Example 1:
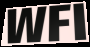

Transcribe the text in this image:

WFI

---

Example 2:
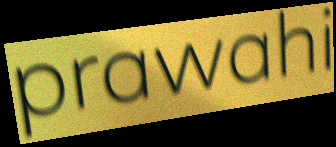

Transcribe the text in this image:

prawahi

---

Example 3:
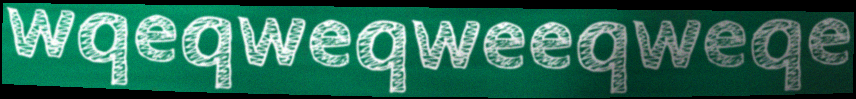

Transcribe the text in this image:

wqeqweqweeqweqe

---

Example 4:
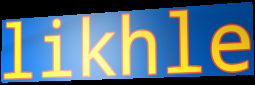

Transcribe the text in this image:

likhle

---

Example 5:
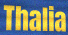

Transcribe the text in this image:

Thalia